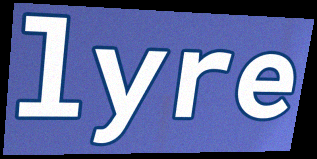
lyre